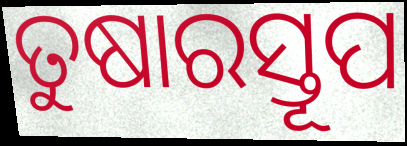
ତୁଷାରସ୍ତୂପ